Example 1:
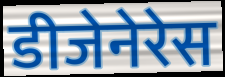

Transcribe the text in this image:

डीजेनेरेस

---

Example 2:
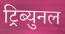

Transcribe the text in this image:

ट्रिब्युनल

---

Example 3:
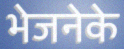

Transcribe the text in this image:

भेजनेके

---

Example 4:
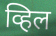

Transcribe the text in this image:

व्हिल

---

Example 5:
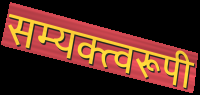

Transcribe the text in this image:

सम्यक्त्वरूपी